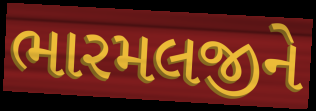
ભારમલજીને